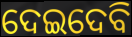
ଦେଇଦେବି